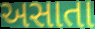
અસાતા